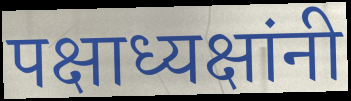
पक्षाध्यक्षांनी